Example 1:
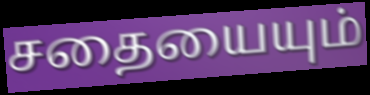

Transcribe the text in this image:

சதையையும்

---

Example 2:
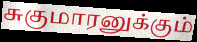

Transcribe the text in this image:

சுகுமாரனுக்கும்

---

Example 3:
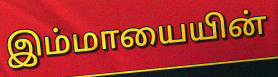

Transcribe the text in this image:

இம்மாயையின்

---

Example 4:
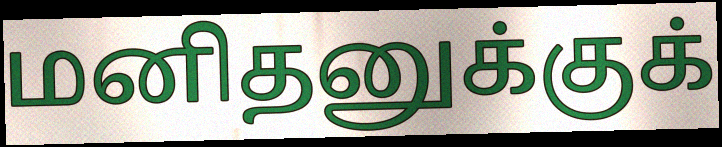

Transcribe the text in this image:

மனிதனுக்குக்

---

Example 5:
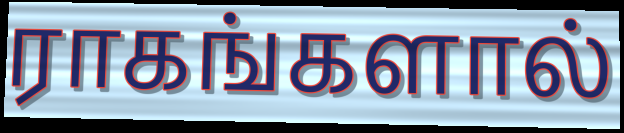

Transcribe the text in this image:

ராகங்களால்